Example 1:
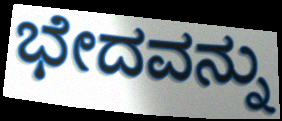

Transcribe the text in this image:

ಭೇದವನ್ನು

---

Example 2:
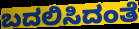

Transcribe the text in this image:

ಬದಲಿಸಿದಂತೆ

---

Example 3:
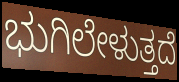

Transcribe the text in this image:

ಭುಗಿಲೇಳುತ್ತದೆ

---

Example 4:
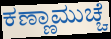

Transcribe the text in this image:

ಕಣ್ಣಾಮುಚ್ಚೆ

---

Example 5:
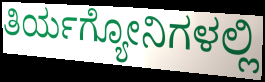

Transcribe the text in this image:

ತಿರ್ಯಗ್ಯೋನಿಗಳಲ್ಲಿ